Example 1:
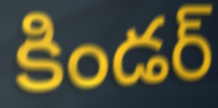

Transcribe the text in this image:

కిండర్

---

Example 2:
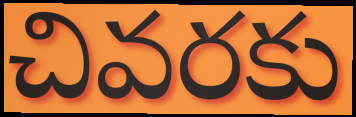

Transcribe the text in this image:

చివరకు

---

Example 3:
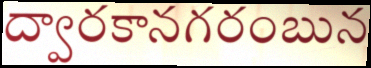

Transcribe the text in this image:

ద్వారకానగరంబున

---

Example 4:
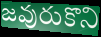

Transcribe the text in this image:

జవురుకొని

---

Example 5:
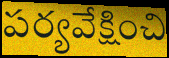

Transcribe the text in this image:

పర్యవేక్షించి